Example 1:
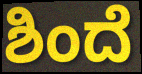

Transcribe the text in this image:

ಶಿಂದೆ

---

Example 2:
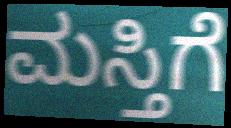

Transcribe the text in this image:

ಮಸ್ತಿಗೆ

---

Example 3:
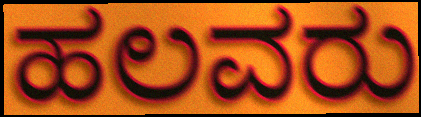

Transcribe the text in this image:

ಹಲವರು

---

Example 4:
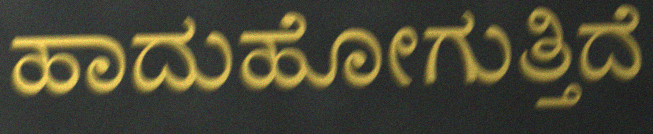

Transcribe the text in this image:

ಹಾದುಹೋಗುತ್ತಿದೆ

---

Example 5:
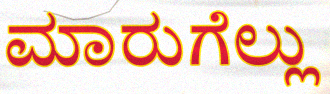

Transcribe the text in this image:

ಮಾರುಗೆಲ್ಲು